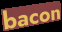
bacon